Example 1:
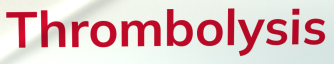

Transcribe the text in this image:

Thrombolysis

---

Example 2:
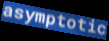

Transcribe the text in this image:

asymptotic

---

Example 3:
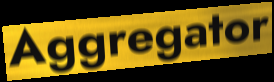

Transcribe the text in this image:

Aggregator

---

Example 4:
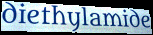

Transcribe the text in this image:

diethylamide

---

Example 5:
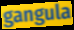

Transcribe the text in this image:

gangula